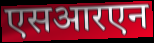
एसआरएन